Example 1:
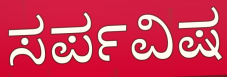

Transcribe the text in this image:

ಸರ್ಪವಿಷ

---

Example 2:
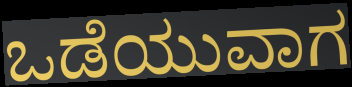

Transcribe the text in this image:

ಒಡೆಯುವಾಗ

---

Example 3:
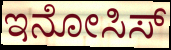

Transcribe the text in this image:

ಇನೋಸಿಸ್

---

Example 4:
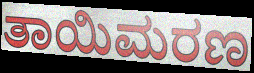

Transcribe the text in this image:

ತಾಯಿಮರಣ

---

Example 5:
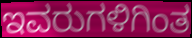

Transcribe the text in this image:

ಇವರುಗಳಿಗಿಂತ